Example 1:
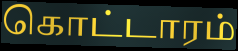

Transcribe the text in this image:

கொட்டாரம்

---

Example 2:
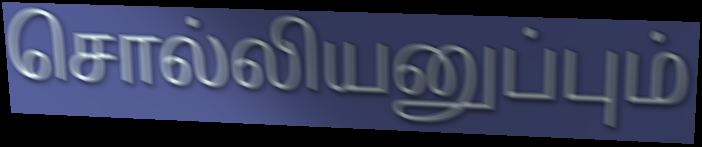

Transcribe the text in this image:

சொல்லியனுப்பும்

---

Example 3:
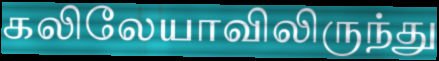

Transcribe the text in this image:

கலிலேயாவிலிருந்து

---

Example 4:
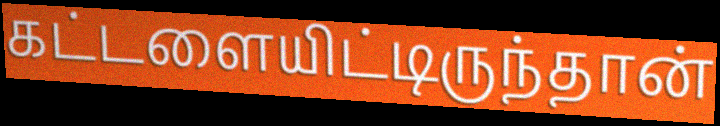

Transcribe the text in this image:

கட்டளையிட்டிருந்தான்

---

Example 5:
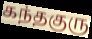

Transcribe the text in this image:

கந்தகுரு